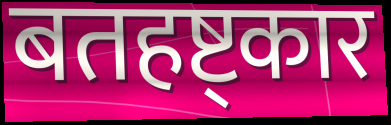
बतहष्ट्कार